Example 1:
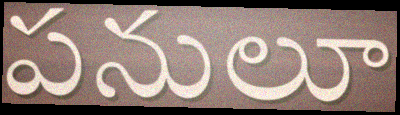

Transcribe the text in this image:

పనులూ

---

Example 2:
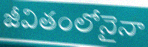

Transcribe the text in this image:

జీవితంలోనైనా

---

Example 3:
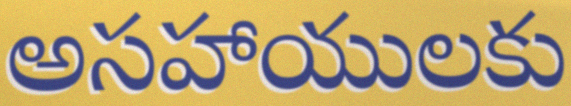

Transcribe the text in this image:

అసహాయులకు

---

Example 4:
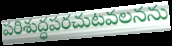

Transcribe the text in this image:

పరిశుద్ధపరచుటవలనను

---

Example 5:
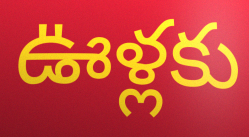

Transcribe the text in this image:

ఊళ్లకు